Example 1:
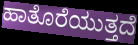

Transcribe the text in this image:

ಹಾತೊರೆಯುತ್ತದೆ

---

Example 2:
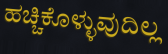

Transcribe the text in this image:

ಹಚ್ಚಿಕೊಳ್ಳುವುದಿಲ್ಲ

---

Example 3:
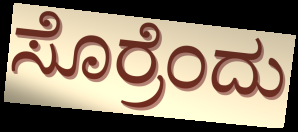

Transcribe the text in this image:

ಸೊರ್ರೆಂದು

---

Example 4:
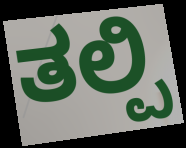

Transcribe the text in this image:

ತಲ್ಪಿ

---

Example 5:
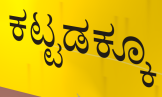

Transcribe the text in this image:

ಕಟ್ಟಡಕ್ಕೂ